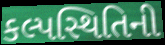
કલ્પસ્થિતિની